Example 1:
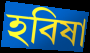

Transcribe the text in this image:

হবিষা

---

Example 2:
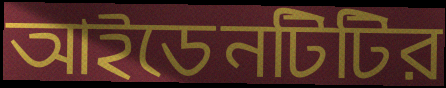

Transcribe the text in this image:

আইডেনটিটির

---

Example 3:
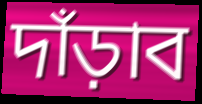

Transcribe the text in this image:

দাঁড়াব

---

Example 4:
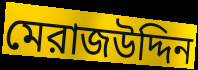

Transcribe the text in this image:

মেরাজউদ্দিন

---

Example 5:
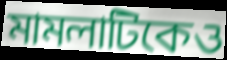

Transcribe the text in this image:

মামলাটিকেও